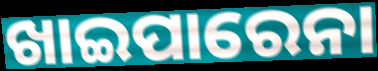
ଖାଇପାରେନା